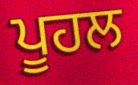
ਪੂਹਲ